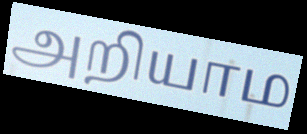
அறியாம